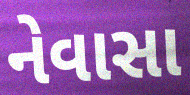
નેવાસા